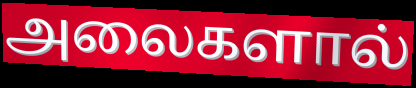
அலைகளால்